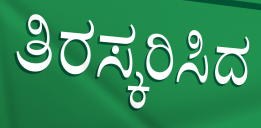
ತಿರಸ್ಕರಿಸಿದ